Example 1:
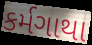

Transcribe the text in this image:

કર્મગાથા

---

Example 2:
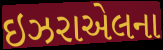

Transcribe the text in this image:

ઇઝરાએલના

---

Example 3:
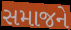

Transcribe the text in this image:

સમાજને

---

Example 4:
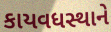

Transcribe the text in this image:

કાયવધસ્થાને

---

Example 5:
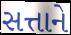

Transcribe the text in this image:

સત્તાને